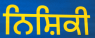
ਨਿਸ਼ਿਕੀ